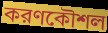
করণকৌশল